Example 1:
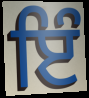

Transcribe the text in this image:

ਇੰ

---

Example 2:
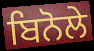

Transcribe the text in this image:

ਬਿਨੋਲੇ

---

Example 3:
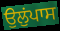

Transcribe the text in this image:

ਉਲੁਂਪਾਸ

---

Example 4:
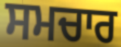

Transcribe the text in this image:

ਸਮਚਾਰ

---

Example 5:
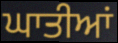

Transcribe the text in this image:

ਘਾਤੀਆਂ